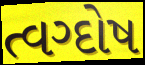
ત્વગ્દોષ